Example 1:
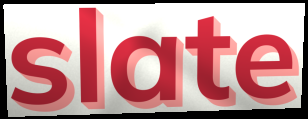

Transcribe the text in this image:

slate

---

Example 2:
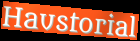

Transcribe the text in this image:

Haustorial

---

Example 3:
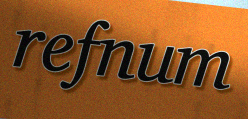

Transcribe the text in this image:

refnum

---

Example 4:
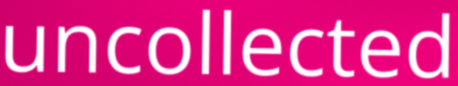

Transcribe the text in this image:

uncollected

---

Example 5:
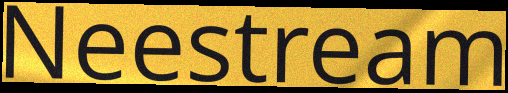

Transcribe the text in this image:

Neestream